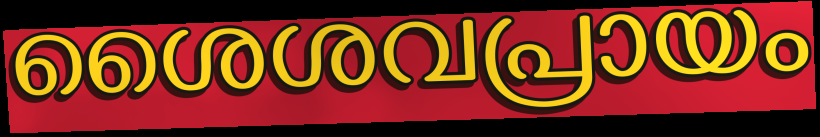
ശൈശവപ്രായം